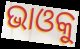
ଭାଓକୁ